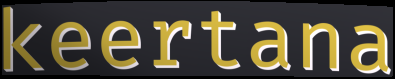
keertana